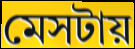
মেসটায়